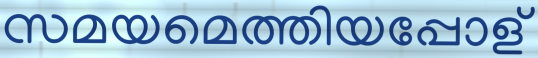
സമയമെത്തിയപ്പോള്